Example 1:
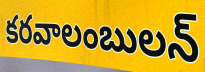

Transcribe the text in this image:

కరవాలంబులన్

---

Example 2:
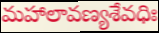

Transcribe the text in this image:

మహాలావణ్యశేవధిః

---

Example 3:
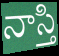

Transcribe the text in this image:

నాస్తి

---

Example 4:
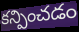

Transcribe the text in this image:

కన్పించడం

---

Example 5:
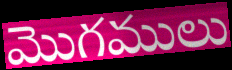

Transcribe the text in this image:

మొగములు